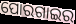
ପୋରଗାଇର